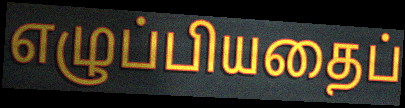
எழுப்பியதைப்